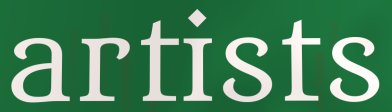
artists